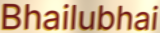
Bhailubhai